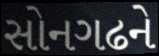
સોનગઢને